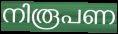
നിരൂപണ